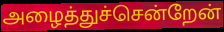
அழைத்துச்சென்றேன்